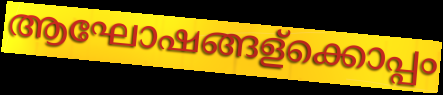
ആഘോഷങ്ങള്ക്കൊപ്പം